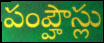
పంప్హౌస్లు